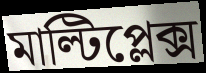
মাল্টিপ্লেক্স